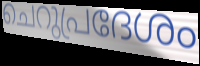
ചെറുപ്രദേശം